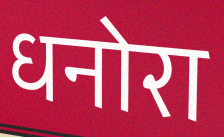
धनोरा